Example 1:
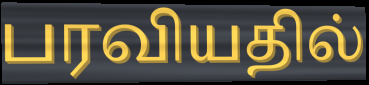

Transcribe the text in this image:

பரவியதில்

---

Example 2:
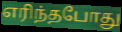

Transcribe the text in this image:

எரிந்தபோது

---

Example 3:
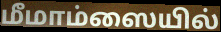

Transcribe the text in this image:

மீமாம்ஸையில்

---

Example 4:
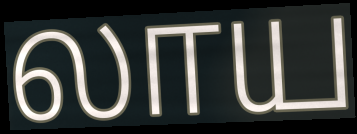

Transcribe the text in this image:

லாய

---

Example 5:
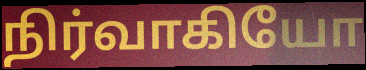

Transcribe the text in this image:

நிர்வாகியோ